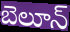
బెలూన్